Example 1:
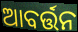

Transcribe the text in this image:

ଆବର୍ତ୍ତନ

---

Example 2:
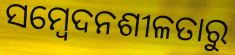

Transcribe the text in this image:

ସମ୍ବେଦନଶୀଳତାରୁ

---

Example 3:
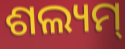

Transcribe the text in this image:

ଶଲ୍ୟମ୍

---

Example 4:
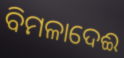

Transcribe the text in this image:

ବିମଳାଦେଈ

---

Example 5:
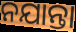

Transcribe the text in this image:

ନଯାନ୍ତା